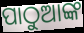
ପାଠୁଆଙ୍କ